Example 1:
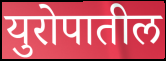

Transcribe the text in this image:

युरोपातील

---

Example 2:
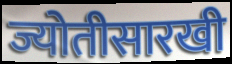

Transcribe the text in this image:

ज्योतीसारखी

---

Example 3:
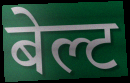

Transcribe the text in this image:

बेल्ट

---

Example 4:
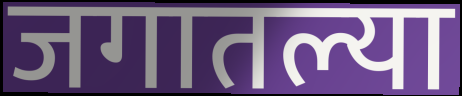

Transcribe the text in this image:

जगातल्या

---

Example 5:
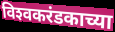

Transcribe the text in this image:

विश्‍वकरंडकाच्या